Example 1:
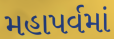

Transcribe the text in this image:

મહાપર્વમાં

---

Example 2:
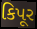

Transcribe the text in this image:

કિપૂર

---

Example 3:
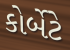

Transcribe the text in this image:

કોર્બેટે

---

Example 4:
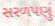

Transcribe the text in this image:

સરળપણું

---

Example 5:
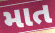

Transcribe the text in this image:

માત